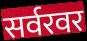
सर्वरवर